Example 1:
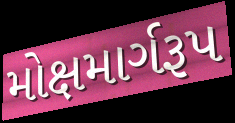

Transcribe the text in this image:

મોક્ષમાર્ગરૂપ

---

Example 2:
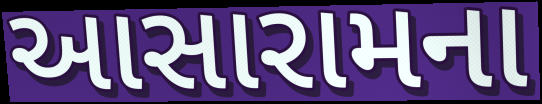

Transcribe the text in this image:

આસારામના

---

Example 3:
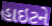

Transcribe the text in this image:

હાઇટને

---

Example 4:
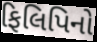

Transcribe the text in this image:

ફિલિપિનો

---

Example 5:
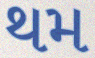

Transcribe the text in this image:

થમ